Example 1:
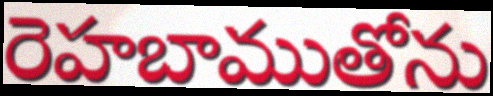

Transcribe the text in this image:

రెహబాముతోను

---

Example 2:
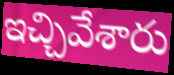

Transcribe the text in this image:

ఇచ్చివేశారు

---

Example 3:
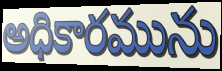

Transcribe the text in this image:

అధికారమును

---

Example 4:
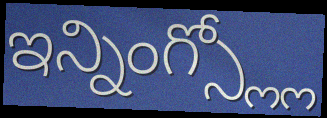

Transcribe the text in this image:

ఇన్నింగ్స్ల్లో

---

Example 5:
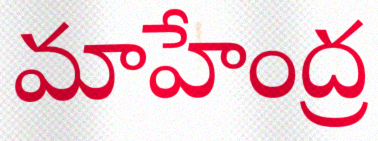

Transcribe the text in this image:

మాహేంద్ర